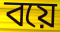
বয়ে